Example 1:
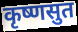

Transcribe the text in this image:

कृष्णसुत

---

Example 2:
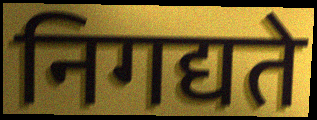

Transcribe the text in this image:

निगद्यते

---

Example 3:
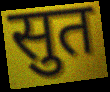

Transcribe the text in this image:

सुत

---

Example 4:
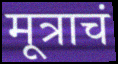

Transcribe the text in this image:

मूत्राचं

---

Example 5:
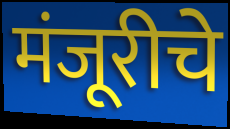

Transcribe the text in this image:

मंजूरीचे